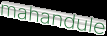
mahandule